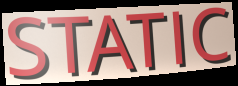
STATIC